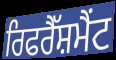
ਰਿਫਰੈੱਸ਼ਮੈਂਟ